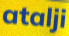
atalji